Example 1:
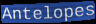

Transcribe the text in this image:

Antelopes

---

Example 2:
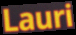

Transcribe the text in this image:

Lauri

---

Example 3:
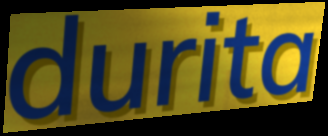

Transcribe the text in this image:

durita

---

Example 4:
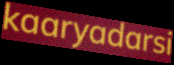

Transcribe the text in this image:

kaaryadarsi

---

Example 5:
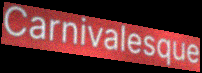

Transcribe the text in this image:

Carnivalesque